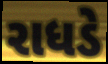
રાધડે